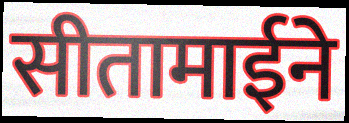
सीतामाईने